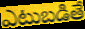
ఎటుబడితే